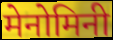
मेनोमिनी